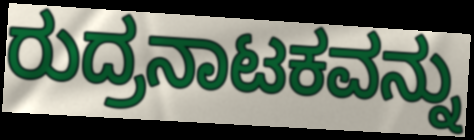
ರುದ್ರನಾಟಕವನ್ನು